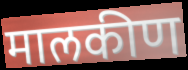
मालकीण